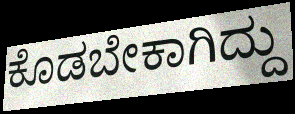
ಕೊಡಬೇಕಾಗಿದ್ದು